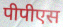
पीपीएस